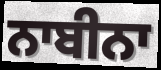
ਨਾਬੀਨਾ